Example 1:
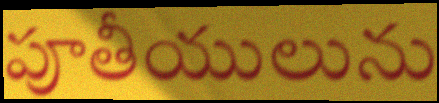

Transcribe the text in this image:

పూతీయులును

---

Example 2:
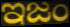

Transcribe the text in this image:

ఇజం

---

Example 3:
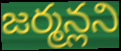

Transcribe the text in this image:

జర్మన్లని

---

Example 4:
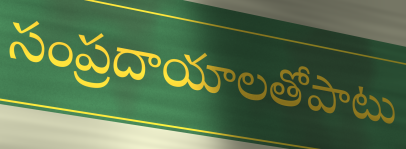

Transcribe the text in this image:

సంప్రదాయాలతోపాటు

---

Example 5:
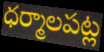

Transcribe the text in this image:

ధర్మాలపట్ల